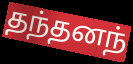
தந்தனந்